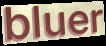
bluer